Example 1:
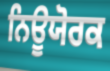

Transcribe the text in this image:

ਨਿਊਯੋਰਕ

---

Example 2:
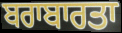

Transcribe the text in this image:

ਬਰਾਬਾਰਤਾ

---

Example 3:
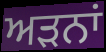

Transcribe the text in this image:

ਅੜਨਾਂ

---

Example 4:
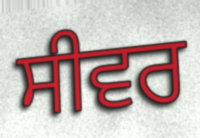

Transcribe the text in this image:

ਸੀਵਰ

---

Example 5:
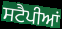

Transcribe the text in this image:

ਸਟੈਪੀਆਂ